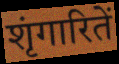
शृंगारितें